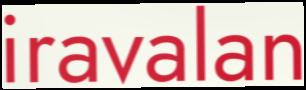
iravalan